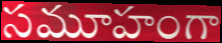
సమూహంగా